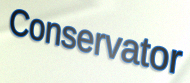
Conservator